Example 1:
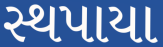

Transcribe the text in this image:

સ્થપાયા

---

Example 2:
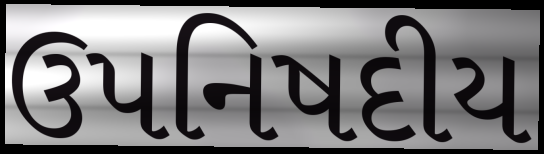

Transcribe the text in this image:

ઉપનિષદીય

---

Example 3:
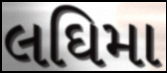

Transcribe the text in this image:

લઘિમા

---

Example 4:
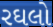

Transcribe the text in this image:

રઘલો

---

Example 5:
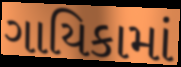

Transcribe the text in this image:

ગાયિકામાં